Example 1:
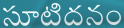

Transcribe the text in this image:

సూటిదనం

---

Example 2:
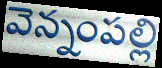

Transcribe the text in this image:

వెన్నంపల్లి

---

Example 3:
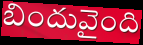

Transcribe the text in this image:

బిందువైంది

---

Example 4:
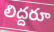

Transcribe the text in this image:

లిద్దరూ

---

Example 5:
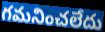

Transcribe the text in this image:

గమనించలేదు